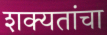
शक्यतांचा